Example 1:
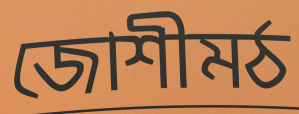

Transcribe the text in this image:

জোশীমঠ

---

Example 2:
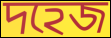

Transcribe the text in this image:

দহেজ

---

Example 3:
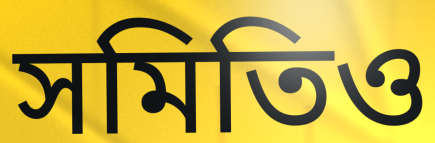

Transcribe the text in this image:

সমিতিও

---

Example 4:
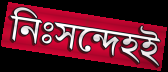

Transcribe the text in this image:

নিঃসন্দেহই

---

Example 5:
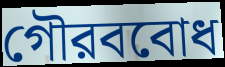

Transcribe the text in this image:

গৌরববোধ